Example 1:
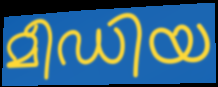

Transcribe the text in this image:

മീഡിയ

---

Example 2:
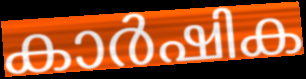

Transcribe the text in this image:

കാർഷിക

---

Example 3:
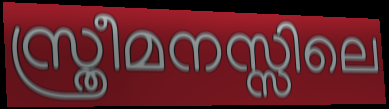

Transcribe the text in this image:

സ്ത്രീമനസ്സിലെ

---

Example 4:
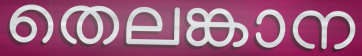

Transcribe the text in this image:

തെലങ്കാന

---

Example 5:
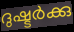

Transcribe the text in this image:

ദുഷ്ടർക്കു